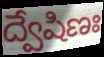
ద్వేషిణః